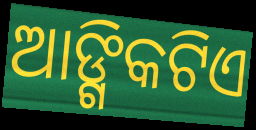
ଆଙ୍ଗିକଟିଏ